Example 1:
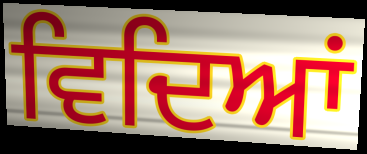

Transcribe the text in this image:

ਵਿਦਿਆਂ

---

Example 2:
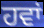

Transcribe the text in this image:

ਹਵਾਂ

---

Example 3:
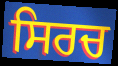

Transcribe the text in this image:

ਸਿਰਚ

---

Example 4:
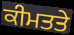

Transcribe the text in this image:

ਕੀਮਤਤੇ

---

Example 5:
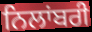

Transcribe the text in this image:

ਨਿਲਾਂਬਰੀ